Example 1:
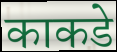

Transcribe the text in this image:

काकडे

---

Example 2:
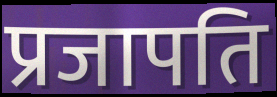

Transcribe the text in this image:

प्रजापति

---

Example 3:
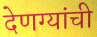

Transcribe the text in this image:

देणग्यांची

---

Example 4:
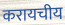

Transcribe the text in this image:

करायचीय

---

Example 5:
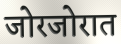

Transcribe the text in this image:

जोरजोरात